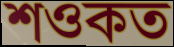
শওকত